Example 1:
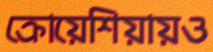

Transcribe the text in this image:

ক্রোয়েশিয়ায়ও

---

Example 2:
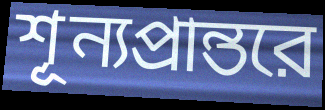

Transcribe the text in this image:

শূন্যপ্রান্তরে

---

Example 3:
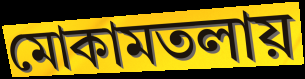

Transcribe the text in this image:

মোকামতলায়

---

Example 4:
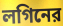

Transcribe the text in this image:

লগিনের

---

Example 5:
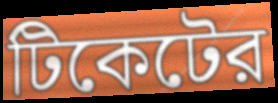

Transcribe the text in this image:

টিকেটের